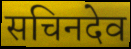
सचिनदेव